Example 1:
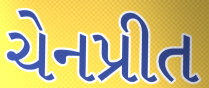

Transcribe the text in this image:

ચેનપ્રીત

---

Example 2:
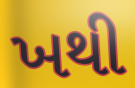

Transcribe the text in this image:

ખથી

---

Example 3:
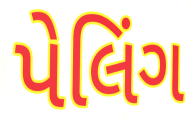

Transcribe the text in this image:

પેલિંગ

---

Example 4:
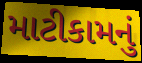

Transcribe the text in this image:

માટીકામનું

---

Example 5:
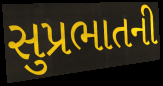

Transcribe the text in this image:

સુપ્રભાતની